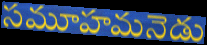
సమూహమనెడు